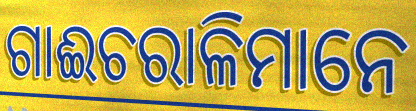
ଗାଈଚରାଳିମାନେ